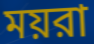
ময়রা